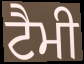
ਟੈਮੀ